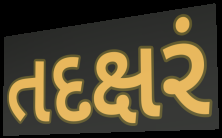
તદક્ષરં